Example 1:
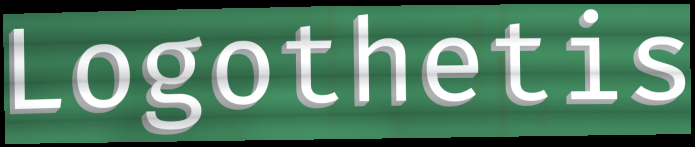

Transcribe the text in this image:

Logothetis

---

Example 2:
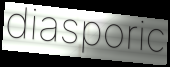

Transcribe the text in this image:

diasporic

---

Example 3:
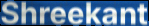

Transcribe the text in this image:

Shreekant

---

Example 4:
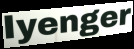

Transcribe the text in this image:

Iyenger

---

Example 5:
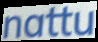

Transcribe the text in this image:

nattu